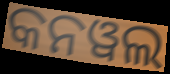
କନୱଲ